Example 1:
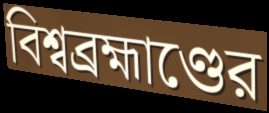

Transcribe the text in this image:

বিশ্বব্রহ্মাণ্ডের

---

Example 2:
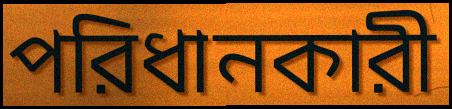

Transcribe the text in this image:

পরিধানকারী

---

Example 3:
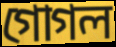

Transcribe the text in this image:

গোগল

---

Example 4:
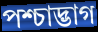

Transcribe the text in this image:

পশ্চাদ্ভাগ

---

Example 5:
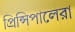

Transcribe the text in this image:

প্রিন্সিপালেরা